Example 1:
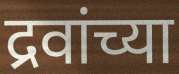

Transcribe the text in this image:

द्रवांच्या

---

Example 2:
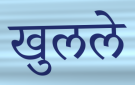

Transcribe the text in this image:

खुलले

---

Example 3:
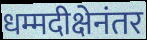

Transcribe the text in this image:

धम्मदीक्षेनंतर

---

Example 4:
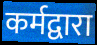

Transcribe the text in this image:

कर्मद्वारा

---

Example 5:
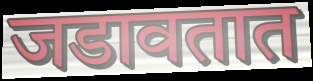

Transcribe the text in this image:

जडावतात